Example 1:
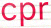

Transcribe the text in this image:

cpr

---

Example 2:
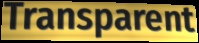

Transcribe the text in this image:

Transparent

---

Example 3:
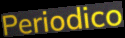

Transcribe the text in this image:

Periodico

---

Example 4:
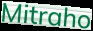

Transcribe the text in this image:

Mitraho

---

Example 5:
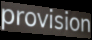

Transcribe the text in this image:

provision